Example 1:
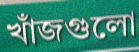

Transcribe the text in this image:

খাঁজগুলো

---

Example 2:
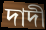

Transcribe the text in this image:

দাদী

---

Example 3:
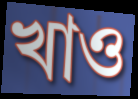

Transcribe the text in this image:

খাও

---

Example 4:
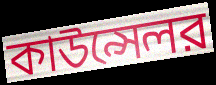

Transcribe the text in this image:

কাউন্সেলর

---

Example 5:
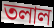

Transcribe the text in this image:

তলাল